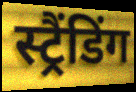
स्ट्रैंडिंग